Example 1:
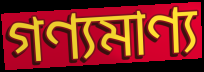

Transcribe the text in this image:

গণ্যমাণ্য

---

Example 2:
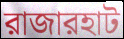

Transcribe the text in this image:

রাজারহাট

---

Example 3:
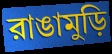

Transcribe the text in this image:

রাঙামুড়ি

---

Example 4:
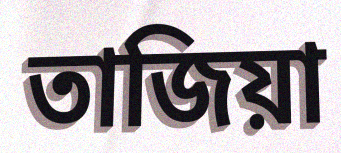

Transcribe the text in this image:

তাজিয়া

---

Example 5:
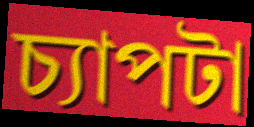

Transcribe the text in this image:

চ্যাপটা